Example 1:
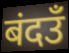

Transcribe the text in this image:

बंदउँ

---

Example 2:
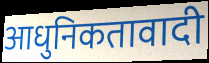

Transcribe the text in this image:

आधुनिकतावादी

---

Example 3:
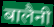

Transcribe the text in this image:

बालैनी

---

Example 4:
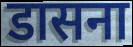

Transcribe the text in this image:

डासना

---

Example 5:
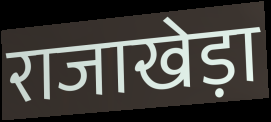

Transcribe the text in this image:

राजाखेड़ा